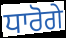
ਧਾਰੋਗੇ